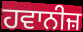
ਹਵਾਨੀਜ਼